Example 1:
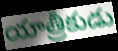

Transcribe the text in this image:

యాత్రీకుడు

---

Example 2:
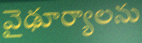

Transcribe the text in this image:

వైఢూర్యాలను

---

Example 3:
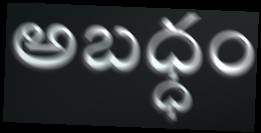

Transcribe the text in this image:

అబధ్ధం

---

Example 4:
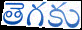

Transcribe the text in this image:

తెగకు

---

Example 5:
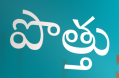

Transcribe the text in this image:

పొత్తు